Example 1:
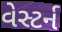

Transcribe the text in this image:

વેસ્ટર્ન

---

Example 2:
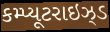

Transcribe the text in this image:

કમ્પ્યૂટરાઇઝ્ડ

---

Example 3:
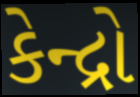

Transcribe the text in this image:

કેન્દ્રો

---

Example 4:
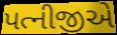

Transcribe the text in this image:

પત્નીજીએ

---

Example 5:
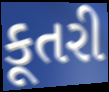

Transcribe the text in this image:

કૂતરી